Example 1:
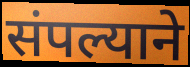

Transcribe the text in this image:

संपल्याने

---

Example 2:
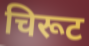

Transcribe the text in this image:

चिरूट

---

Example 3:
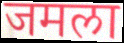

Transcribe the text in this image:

जमला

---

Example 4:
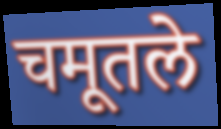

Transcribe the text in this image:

चमूतले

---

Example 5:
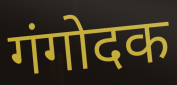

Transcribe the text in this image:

गंगोदक